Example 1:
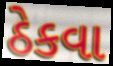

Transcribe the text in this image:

ઠેકવા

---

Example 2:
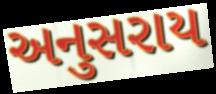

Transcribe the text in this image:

અનુસરાય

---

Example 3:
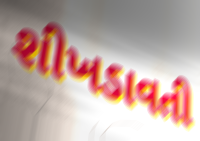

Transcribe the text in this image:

શીખડાવતી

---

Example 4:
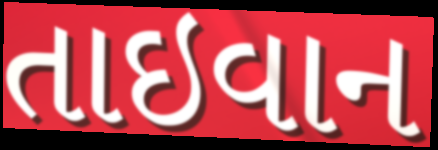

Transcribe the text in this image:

તાઇવાન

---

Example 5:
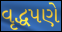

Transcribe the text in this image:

વૃદ્ધપણે